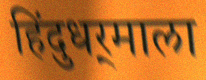
हिंदुधर्माला